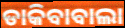
ଡାକିବାବାଲା